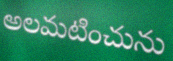
అలమటించును